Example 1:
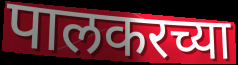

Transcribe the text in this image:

पालकरच्या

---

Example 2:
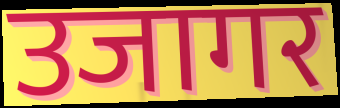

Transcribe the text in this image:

उजागर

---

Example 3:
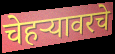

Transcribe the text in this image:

चेहऱ्यावरचे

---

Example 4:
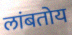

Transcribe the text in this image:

लांबतोय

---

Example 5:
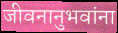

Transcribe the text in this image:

जीवनानुभवांना